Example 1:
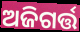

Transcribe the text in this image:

ଅଜିଗର୍ତ୍ତ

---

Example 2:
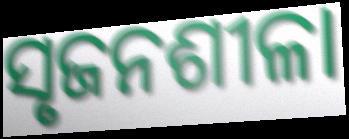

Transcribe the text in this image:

ସୃଜନଶୀଳା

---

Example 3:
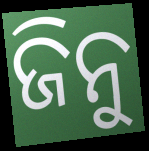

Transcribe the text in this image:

ଜିନୁ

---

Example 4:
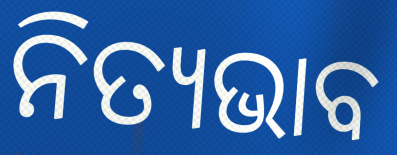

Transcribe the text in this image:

ନିତ୍ୟଭାବ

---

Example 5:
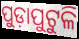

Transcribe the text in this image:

ପୁଡ଼ାପୁଟୁଳି